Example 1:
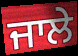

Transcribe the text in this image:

ਜਾਲੇ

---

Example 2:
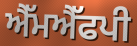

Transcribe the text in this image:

ਐੱਮਐੱਫਪੀ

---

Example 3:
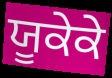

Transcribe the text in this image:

ਯੂਕੇਕੇ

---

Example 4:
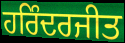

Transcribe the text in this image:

ਹਰਿੰਦਰਜੀਤ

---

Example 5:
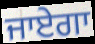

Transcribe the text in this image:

ਜਾਏਗਾ